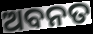
ଅବନତ